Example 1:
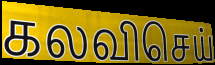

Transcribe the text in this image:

கலவிசெய்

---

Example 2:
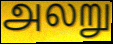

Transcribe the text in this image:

அலறு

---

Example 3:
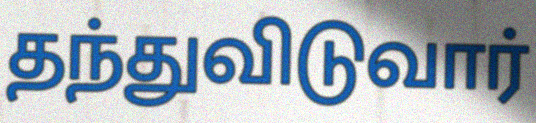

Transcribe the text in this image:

தந்துவிடுவார்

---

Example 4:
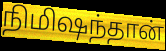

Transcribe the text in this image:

நிமிஷந்தான்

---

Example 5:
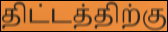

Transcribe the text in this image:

திட்டத்திற்கு